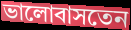
ভালোবাসতেন